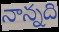
నాన్నది